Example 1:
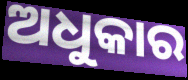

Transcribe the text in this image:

ଅଧୁକାର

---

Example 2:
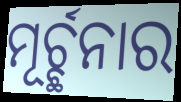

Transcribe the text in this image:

ମୂର୍ଚ୍ଛନାର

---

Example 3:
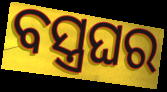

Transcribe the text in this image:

ବସ୍ତ୍ରଘର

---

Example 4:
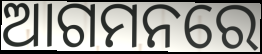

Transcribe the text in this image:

ଆଗମନରେ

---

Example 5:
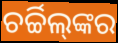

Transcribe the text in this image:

ଚର୍ଚ୍ଚିଲ୍‌ଙ୍କର